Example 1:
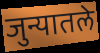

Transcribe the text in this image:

जुन्यातले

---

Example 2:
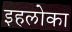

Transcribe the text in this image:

इहलोका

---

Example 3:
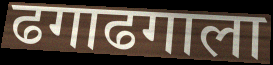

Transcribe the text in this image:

ढगाढगाला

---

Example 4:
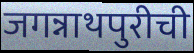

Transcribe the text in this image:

जगन्नाथपुरीची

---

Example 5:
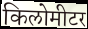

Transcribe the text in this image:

किलोमीटर